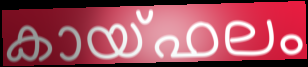
കായ്ഫലം